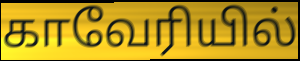
காவேரியில்